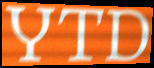
YTD